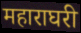
महाराघरी